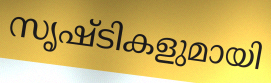
സൃഷ്ടികളുമായി